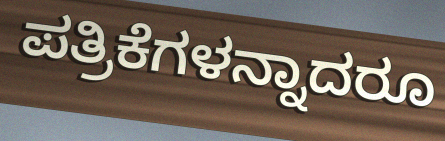
ಪತ್ರಿಕೆಗಳನ್ನಾದರೂ